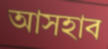
আসহাব